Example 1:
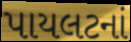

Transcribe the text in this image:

પાયલટનાં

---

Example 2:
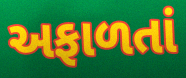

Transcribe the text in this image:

અફાળતાં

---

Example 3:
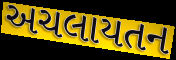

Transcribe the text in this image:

અચલાયતન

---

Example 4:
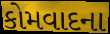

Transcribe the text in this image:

કોમવાદના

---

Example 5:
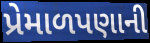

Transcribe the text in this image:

પ્રેમાળપણાની